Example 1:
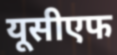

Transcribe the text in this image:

यूसीएफ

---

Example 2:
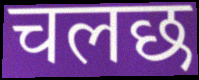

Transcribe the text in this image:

चलछ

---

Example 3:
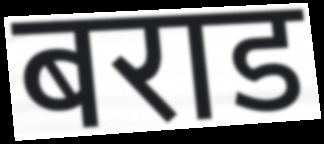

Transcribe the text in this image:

बराड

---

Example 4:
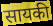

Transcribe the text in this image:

सायकी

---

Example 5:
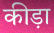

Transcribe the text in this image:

कीड़ा